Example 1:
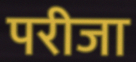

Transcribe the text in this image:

परीजा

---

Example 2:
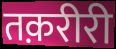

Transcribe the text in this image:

तक़रीरी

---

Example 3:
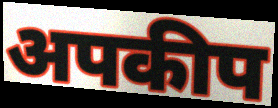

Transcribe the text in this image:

अपकीप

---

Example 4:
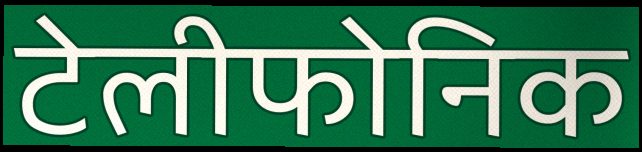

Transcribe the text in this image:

टेलीफोनिक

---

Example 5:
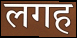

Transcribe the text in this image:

लगह